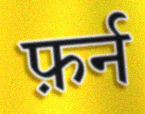
फ़र्न